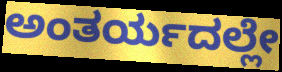
ಅಂತರ್ಯದಲ್ಲೇ